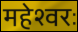
महेश्वरः